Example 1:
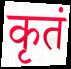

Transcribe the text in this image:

कृतं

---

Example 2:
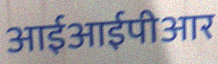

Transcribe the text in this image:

आईआईपीआर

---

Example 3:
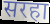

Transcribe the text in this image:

सरहा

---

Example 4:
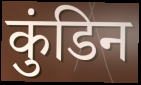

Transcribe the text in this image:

कुंडिन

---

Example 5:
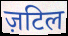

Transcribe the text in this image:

ज़टिल